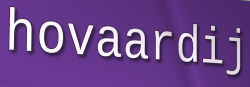
hovaardij